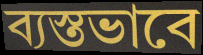
ব্যস্তভাবে